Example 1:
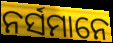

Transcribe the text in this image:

ନର୍ସମାନେ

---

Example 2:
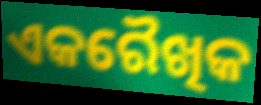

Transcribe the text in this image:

ଏକରୈଖିକ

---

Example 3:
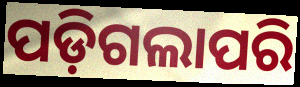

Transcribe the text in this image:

ପଡ଼ିଗଲାପରି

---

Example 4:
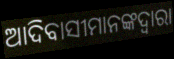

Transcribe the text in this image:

ଆଦିବାସୀମାନଙ୍କଦ୍ୱାରା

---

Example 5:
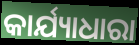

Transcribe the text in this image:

କାର୍ଯ୍ୟାଧାରା